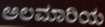
ಅಲಮಾರಿಯ